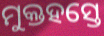
ମୁକ୍ତହସ୍ତେ